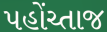
પહોંચ્તાજ